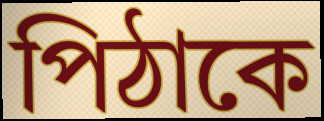
পিঠাকে